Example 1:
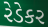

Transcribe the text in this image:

રેડેકર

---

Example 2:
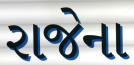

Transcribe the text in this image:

રાજેના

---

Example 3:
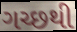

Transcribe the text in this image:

ગચ્છથી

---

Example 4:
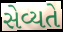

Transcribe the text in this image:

સેવ્યતે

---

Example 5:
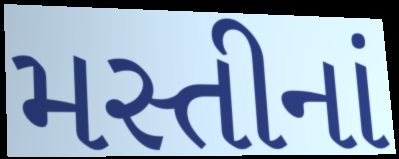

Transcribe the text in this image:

મસ્તીનાં